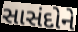
સાસંદોને